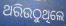
ଥରିଉଠୁଥିଲେ